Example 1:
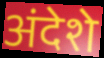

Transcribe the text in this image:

अंदेशे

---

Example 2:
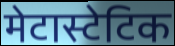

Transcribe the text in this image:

मेटास्टेटिक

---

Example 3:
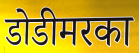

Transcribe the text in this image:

डोडीमरका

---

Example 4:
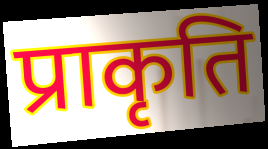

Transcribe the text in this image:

प्राकृति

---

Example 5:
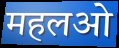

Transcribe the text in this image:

महलओ